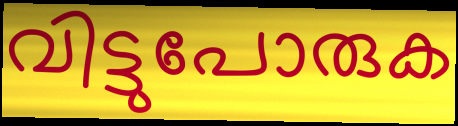
വിട്ടുപോരുക